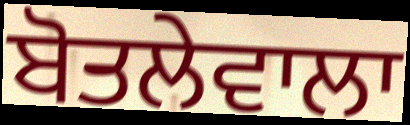
ਬੋਤਲੇਵਾਲਾ